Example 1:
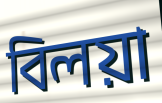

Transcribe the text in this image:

বিলয়া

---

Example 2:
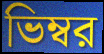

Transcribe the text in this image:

ভিম্বর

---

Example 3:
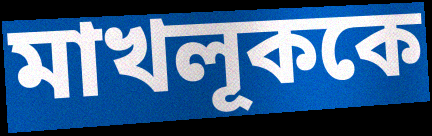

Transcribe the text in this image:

মাখলূককে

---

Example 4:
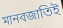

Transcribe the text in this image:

মানবজাতিই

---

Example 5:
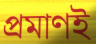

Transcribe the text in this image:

প্রমাণই